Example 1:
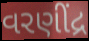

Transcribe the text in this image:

વરણીંદ્ર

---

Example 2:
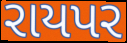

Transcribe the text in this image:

રાયપર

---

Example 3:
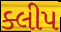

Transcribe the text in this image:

ક્લીપ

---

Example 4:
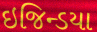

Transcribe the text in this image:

ઇજિન્ડયા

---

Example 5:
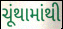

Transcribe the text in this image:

ચૂંથામાંથી